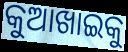
କୁଆଖାଇକୁ